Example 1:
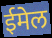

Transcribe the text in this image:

ईमेल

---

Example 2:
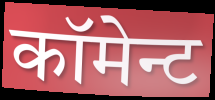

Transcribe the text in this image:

कॉमेन्ट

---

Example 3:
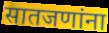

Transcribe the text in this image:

सातजणांना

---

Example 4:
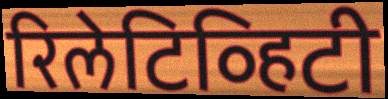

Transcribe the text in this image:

रिलेटिव्हिटी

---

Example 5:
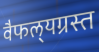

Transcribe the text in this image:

वैफल्यग्रस्त